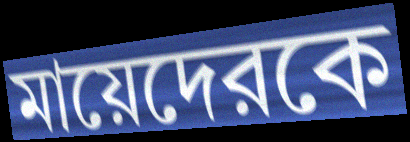
মায়েদেরকে